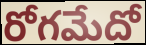
రోగమేదో